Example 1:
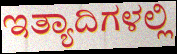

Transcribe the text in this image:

ಇತ್ಯಾದಿಗಳಲ್ಲಿ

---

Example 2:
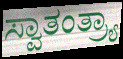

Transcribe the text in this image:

ಸ್ವಾತಂತ್ರ್ಯಾ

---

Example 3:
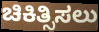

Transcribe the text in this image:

ಚಿಕಿತ್ಸಿಸಲು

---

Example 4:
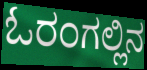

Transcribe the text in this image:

ಓರಂಗಲ್ಲಿನ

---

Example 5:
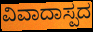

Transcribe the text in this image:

ವಿವಾದಾಸ್ಪದ